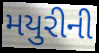
મયુરીની